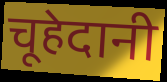
चूहेदानी